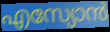
എസ്യോൻ